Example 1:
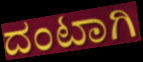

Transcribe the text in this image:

ದಂಟಾಗಿ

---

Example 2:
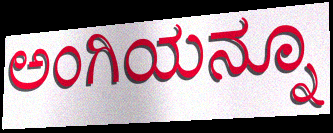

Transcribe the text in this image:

ಅಂಗಿಯನ್ನೂ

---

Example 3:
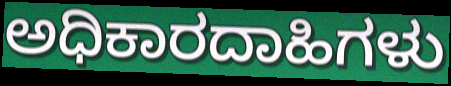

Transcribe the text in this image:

ಅಧಿಕಾರದಾಹಿಗಳು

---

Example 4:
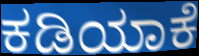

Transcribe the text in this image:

ಕಡಿಯಾಕೆ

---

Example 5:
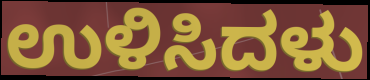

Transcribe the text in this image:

ಉಳಿಸಿದಳು